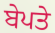
ਬੇਪਤੇ